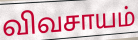
விவசாயம்